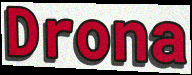
Drona